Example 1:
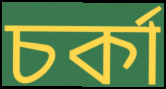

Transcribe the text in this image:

চর্কা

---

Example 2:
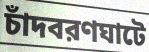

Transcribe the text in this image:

চাঁদবরণঘাটে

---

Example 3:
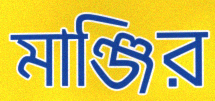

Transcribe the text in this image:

মাঞ্জির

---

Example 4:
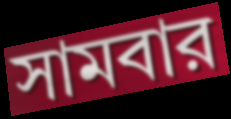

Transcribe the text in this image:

সামবার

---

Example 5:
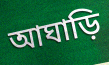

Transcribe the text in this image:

আঘাড়ি